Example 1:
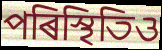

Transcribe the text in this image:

পৰিস্থিতিও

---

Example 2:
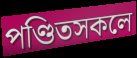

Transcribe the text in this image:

পণ্ডিতসকলে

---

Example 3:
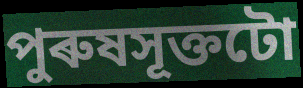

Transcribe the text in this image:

পুৰুষসূক্তটো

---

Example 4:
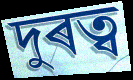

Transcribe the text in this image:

দুৰত্ব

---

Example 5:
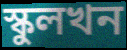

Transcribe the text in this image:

স্কুলখন